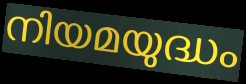
നിയമയുദ്ധം